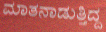
ಮಾತನಾಡುತ್ತಿದ್ದ